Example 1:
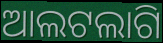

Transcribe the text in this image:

ଆଲଟଲାଗି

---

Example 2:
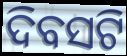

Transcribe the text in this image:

ଦିବସଟି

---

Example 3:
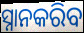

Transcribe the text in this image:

ସ୍ନାନକରିବ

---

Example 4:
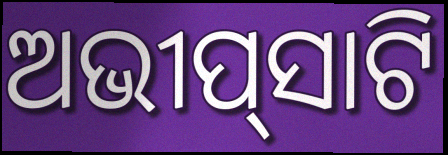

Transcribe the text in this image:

ଅଭୀପ୍‌ସାଟି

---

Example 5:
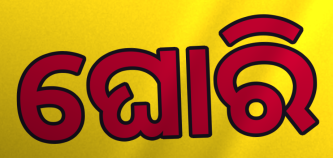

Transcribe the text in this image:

ଘୋରି